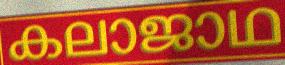
കലാജാഥ